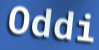
Oddi